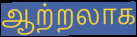
ஆற்றலாக